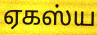
ஏகஸ்ய